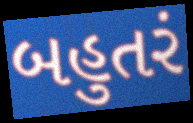
બહુતરં